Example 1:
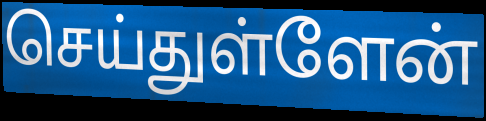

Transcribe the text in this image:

செய்துள்ளேன்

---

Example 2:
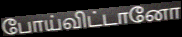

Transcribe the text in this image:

போய்விட்டானோ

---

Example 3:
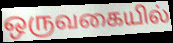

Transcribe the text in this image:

ஒருவகையில்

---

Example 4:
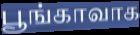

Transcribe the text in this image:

பூங்காவாக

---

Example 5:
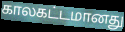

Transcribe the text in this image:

காலகட்டமானது